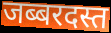
जब्बरदस्त